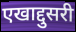
एखाद्दुसरी